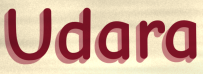
Udara